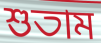
শুতাম